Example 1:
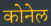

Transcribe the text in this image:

कोनेल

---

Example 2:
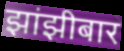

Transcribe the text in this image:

झांझीबार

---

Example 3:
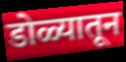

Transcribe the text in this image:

डोळ्यातून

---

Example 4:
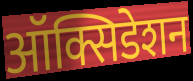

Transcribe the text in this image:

ऑक्सिडेशन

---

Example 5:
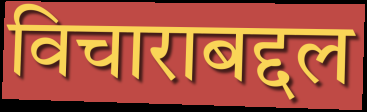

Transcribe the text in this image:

विचाराबद्दल